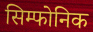
सिम्फोनिक